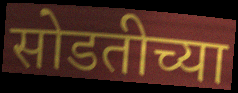
सोडतीच्या